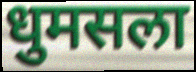
धुमसला